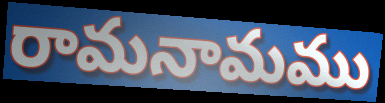
రామనామము